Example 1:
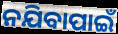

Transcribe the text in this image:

ନଯିବାପାଇଁ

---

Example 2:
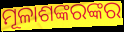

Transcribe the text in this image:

ମୂଳାଶଙ୍କରଙ୍କର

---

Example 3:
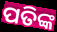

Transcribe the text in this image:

ପତିଙ୍କ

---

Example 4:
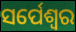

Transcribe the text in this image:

ସର୍ପେଶ୍ୱର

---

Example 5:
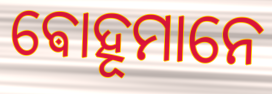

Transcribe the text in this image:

ଵୋହୂମାନେ